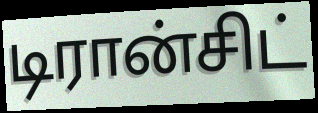
டிரான்சிட்